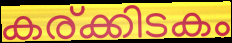
കര്ക്കിടകം